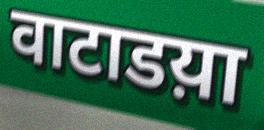
वाटाडय़ा